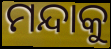
ମନ୍ଦାକୁ